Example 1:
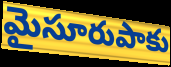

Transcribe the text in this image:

మైసూరుపాకు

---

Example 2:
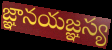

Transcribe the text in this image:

జ్ఞానయజ్ఞస్య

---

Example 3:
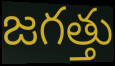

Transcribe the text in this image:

జగత్తు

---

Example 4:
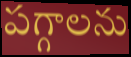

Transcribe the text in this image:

పగ్గాలను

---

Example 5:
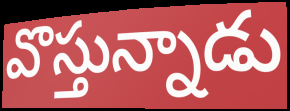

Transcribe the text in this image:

వొస్తున్నాడు